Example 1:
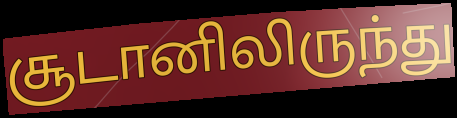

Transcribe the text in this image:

சூடானிலிருந்து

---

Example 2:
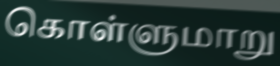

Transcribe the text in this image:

கொள்ளுமாறு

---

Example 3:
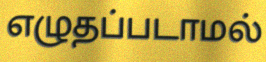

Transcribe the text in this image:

எழுதப்படாமல்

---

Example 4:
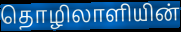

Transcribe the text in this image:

தொழிலாளியின்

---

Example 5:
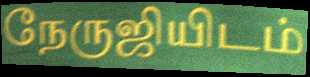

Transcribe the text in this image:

நேருஜியிடம்